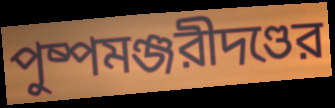
পুষ্পমঞ্জরীদণ্ডের